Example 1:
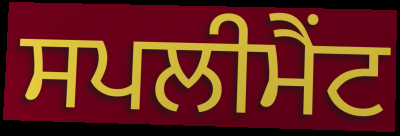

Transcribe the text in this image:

ਸਪਲੀਮੈਂਟ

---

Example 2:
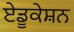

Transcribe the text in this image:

ਏਡੂਕੇਸ਼ਨ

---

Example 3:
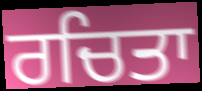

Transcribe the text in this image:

ਰਚਿਤਾ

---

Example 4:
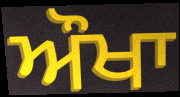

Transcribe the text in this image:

ਔਖਾ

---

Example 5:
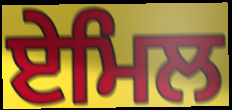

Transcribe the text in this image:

ਏਮਿਲ